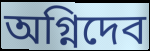
অগ্নিদেব